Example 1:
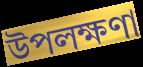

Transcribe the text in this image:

উপলক্ষণা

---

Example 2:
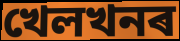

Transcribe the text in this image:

খেলখনৰ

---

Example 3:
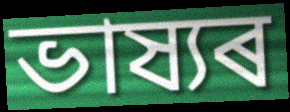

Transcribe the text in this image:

ভাষ্যৰ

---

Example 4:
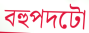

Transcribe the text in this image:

বহুপদটো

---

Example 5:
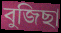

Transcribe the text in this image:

বুজিছা